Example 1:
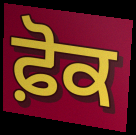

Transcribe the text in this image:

ਫ਼ੋਕ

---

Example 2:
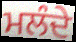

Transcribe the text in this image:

ਮਲੰਦੇ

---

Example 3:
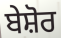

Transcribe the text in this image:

ਬੇਸ਼ੋਰ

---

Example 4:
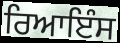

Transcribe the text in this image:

ਰਿਆਇੰਸ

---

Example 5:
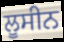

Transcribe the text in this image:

ਲੂਸੀਨ